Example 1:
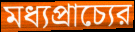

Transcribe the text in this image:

মধ্যপ্রাচ্যের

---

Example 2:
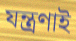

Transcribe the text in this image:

যন্ত্রণাই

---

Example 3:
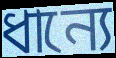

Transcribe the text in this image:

ধান্যে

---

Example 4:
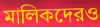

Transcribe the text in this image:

মালিকদেরও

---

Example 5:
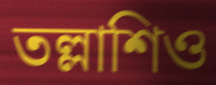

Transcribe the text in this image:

তল্লাশিও